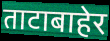
ताटाबाहेर